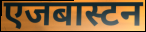
एजबास्टन